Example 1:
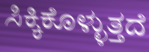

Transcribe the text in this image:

ಸಿಕ್ಕಿಕೊಳ್ಳುತ್ತದೆ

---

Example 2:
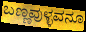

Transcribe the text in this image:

ಬಣ್ಣವುಳ್ಳವನೂ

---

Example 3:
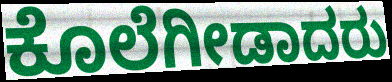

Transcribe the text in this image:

ಕೊಲೆಗೀಡಾದರು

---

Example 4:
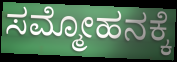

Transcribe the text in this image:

ಸಮ್ಮೋಹನಕ್ಕೆ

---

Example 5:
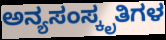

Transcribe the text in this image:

ಅನ್ಯಸಂಸ್ಕೃತಿಗಳ